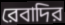
রেবাদির